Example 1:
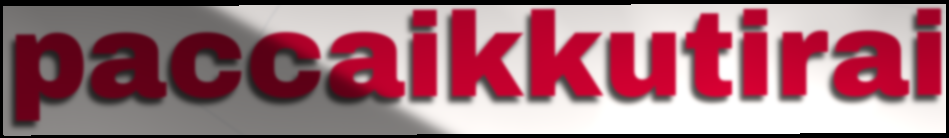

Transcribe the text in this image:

paccaikkutirai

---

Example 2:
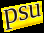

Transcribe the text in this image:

psu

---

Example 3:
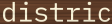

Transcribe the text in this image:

distric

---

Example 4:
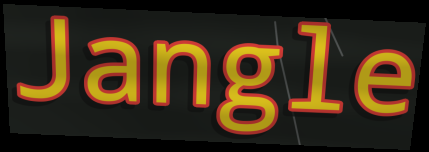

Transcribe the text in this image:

Jangle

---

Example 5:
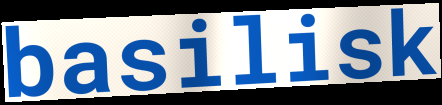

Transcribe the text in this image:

basilisk